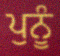
ਪੁਨੂੰ